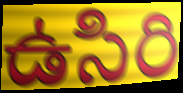
ఉసిరి